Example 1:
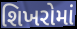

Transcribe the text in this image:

શિખરોમાં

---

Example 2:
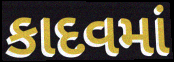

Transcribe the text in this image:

કાદવમાં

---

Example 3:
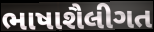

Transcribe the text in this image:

ભાષાશૈલીગત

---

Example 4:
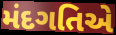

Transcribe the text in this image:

મંદગતિએ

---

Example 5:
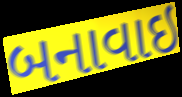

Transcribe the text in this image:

બનાવાઇ